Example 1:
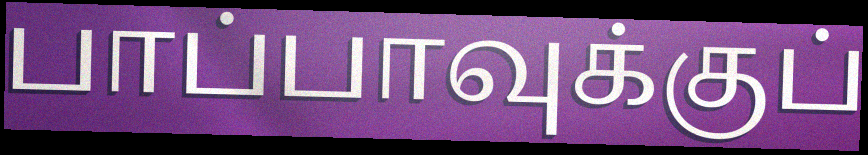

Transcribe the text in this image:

பாப்பாவுக்குப்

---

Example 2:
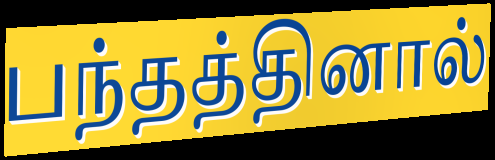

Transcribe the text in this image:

பந்தத்தினால்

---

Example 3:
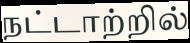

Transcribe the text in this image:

நட்டாற்றில்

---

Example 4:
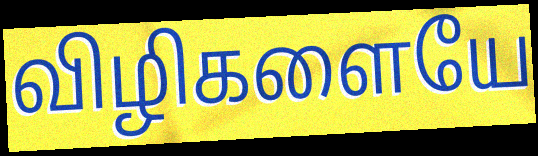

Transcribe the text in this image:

விழிகளையே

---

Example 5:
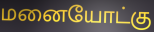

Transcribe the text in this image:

மனையோட்கு